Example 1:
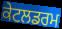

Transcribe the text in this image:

ਕੇਟਲਡਰਮ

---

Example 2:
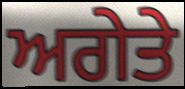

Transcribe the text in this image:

ਅਗੇਤੇ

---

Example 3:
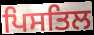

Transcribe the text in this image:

ਪਿਸਤਿਲ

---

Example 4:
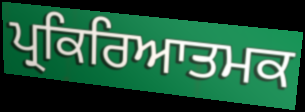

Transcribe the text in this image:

ਪ੍ਰਕਿਰਿਆਤਮਕ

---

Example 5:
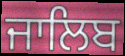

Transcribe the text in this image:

ਜਾਲਿਬ